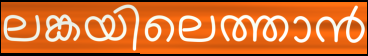
ലങ്കയിലെത്താൻ